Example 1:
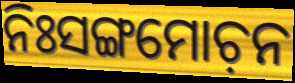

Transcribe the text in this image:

ନିଃସଙ୍ଗମୋଚ଼ନ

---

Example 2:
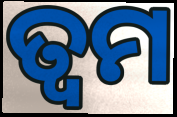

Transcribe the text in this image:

ତ୍ୱମ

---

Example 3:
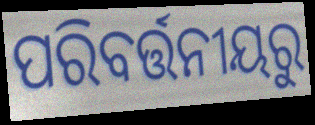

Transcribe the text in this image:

ପରିବର୍ତ୍ତନୀୟରୁ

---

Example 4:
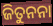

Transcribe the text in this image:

ଜିତୁନନା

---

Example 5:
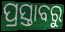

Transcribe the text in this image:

ପ୍ରସ୍ତାବରୁ